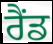
ਰੈਂਡ